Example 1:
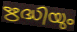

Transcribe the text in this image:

ഋദ്ധിയും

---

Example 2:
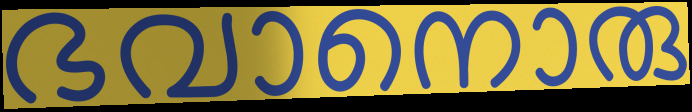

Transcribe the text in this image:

ഭവാനൊരു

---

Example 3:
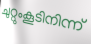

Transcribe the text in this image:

ചുറ്റുംകൂടിനിന്ന്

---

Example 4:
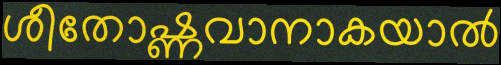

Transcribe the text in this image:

ശീതോഷ്ണവാനാകയാൽ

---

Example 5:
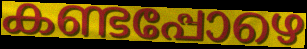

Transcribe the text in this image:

കണ്ടപ്പോഴെ